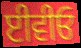
ਈਵੀਓ